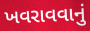
ખવરાવવાનું